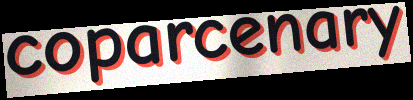
coparcenary